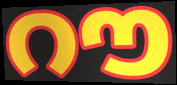
റൗ